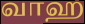
வாஹ